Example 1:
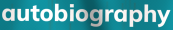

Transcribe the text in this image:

autobiography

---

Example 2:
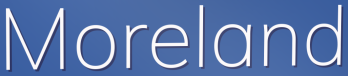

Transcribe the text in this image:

Moreland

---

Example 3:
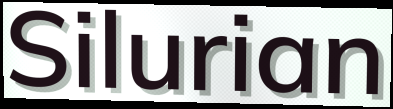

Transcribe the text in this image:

Silurian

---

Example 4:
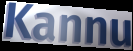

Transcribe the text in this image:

Kannu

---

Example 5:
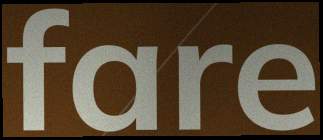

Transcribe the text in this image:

fare